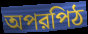
অপরপিঠ